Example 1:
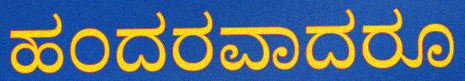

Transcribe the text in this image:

ಹಂದರವಾದರೂ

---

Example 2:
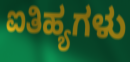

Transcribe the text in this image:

ಐತಿಹ್ಯಗಳು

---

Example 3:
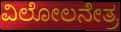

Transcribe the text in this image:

ವಿಲೋಲನೇತ್ರ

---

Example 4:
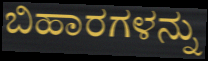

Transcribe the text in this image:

ಬಿಹಾರಗಳನ್ನು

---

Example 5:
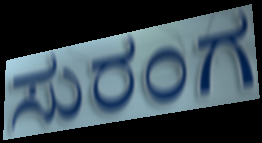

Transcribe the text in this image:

ಸುರಂಗ